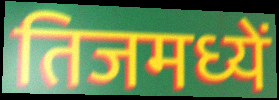
तिजमध्यें